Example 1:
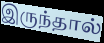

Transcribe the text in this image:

இருந்தால்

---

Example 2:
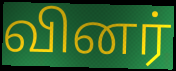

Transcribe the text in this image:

வினர்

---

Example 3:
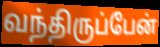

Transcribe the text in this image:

வந்திருப்பேன்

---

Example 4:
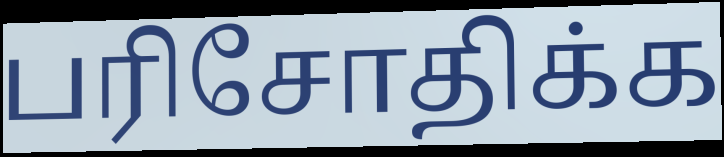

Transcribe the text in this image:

பரிசோதிக்க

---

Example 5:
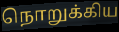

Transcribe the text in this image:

நொறுக்கிய